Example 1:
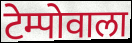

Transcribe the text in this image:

टेम्पोवाला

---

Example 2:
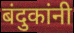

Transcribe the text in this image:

बंदुकांनी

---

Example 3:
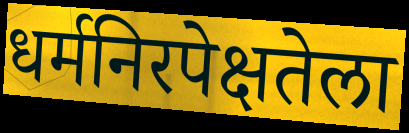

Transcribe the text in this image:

धर्मनिरपेक्षतेला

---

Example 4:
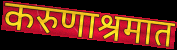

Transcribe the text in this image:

करुणाश्रमात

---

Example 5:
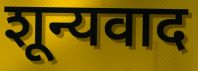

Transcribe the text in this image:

शून्यवाद